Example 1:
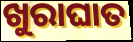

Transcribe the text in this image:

ଖୁରାଘାତ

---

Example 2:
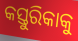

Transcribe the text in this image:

କସ୍ତୁରିକାକୁ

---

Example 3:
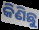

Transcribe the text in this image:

କିଣିଛୁ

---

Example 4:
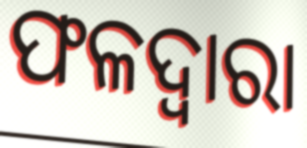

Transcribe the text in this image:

ଫଳଦ୍ୱାରା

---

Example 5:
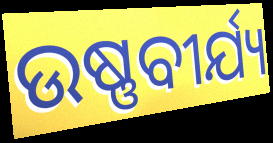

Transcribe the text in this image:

ଉଷ୍ଣବୀର୍ଯ୍ୟ